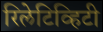
रिलेटिव्हिटी